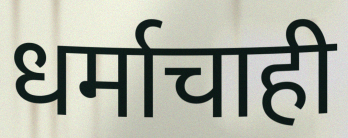
धर्माचाही